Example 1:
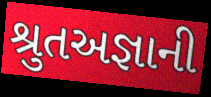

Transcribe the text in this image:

શ્રુતઅજ્ઞાની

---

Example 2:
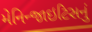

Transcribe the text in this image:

મેનિન્જાઇટિસનું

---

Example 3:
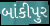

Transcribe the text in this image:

બાંકીપુર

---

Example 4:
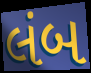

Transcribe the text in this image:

લંબ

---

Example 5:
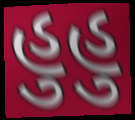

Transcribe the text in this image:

હુહુ